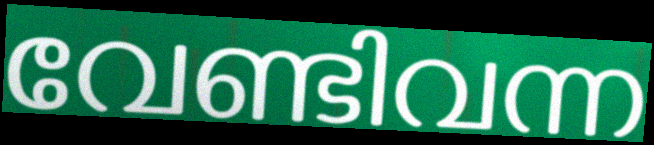
വേണ്ടിവന്ന